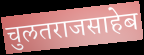
चुलतराजसाहेब